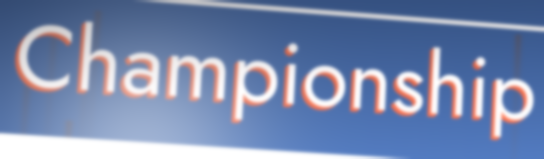
Championship